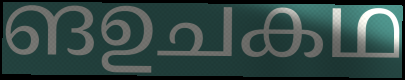
ങഉചകഥ